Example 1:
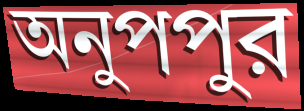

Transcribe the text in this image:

অনুপপুর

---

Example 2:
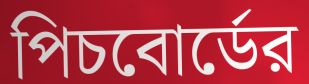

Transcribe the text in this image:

পিচবোর্ডের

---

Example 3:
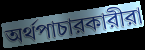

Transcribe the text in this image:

অর্থপাচারকারীরা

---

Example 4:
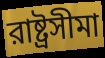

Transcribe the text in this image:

রাষ্ট্রসীমা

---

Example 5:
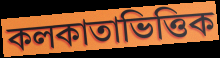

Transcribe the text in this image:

কলকাতাভিত্তিক